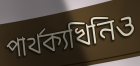
পাৰ্থক্যখিনিও